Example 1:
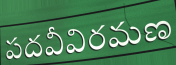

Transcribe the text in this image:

పదవీవిరమణ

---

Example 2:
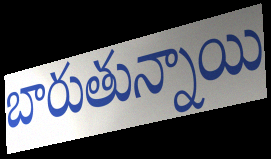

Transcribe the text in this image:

బారుతున్నాయి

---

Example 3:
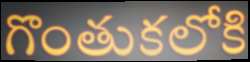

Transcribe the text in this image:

గొంతుకలోకి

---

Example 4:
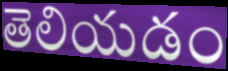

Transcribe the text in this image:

తెలియడం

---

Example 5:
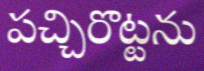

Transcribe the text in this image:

పచ్చిరొట్టను